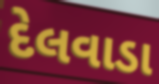
દેલવાડા